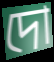
দো